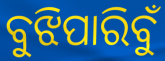
ବୁଝିପାରିବୁଁ